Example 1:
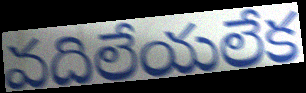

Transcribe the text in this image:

వదిలేయలేక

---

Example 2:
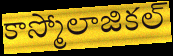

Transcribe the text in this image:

కాస్మోలాజికల్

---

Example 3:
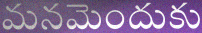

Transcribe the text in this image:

మనమెందుకు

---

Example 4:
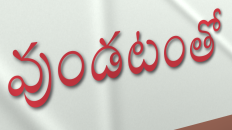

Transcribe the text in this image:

వుండటంతో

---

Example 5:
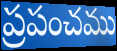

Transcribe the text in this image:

ప్రపంచము